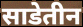
साडेतीन